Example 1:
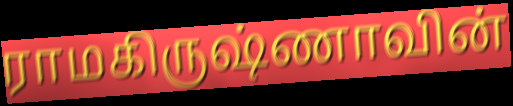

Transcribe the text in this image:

ராமகிருஷ்ணாவின்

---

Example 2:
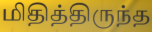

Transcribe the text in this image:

மிதித்திருந்த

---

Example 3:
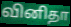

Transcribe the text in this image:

வினிதா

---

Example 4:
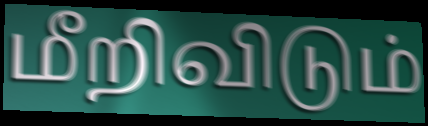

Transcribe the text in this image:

மீறிவிடும்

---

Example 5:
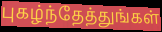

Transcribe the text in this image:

புகழ்ந்தேத்துங்கள்